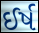
ઈર્ષ